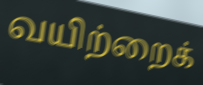
வயிற்றைக்